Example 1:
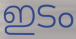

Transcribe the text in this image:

ഇടം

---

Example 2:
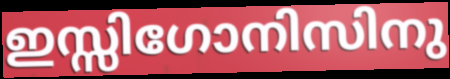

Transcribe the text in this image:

ഇസ്സിഗോനിസിനു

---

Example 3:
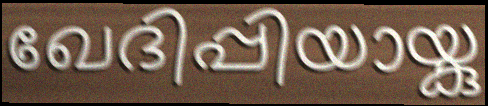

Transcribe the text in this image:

ഖേദിപ്പിയായ്കു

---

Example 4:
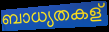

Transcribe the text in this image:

ബാധ്യതകള്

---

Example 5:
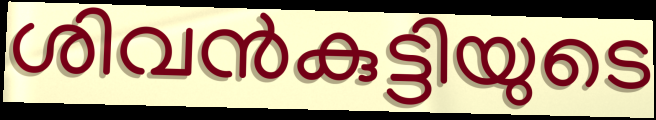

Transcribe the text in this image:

ശിവൻകുട്ടിയുടെ